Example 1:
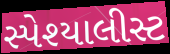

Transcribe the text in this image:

સ્પેશ્યાલીસ્ટ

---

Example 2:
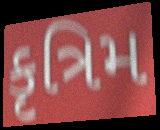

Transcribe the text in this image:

કૃત્રિમ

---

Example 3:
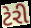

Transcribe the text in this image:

ટેરી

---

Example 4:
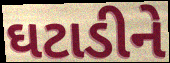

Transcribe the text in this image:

ઘટાડીને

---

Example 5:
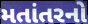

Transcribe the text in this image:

મતાંતરનો